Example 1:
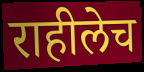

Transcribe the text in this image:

राहीलेच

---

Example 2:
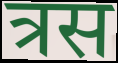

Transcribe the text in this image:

त्रस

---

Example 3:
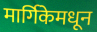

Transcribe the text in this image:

मार्गिकेमधून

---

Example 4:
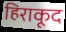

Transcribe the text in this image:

हिराकूद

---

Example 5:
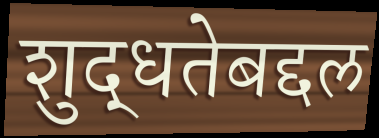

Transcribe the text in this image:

शुद्धतेबद्दल